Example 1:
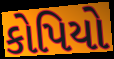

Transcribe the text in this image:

કોપિયો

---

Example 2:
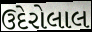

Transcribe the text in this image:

ઉદેરોલાલ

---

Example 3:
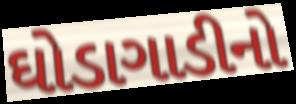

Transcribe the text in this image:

ઘોડાગાડીનો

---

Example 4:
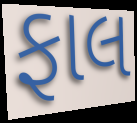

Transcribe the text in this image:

ફાલ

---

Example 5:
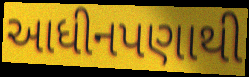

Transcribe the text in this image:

આધીનપણાથી